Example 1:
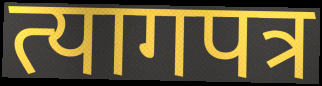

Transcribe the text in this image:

त्‍यागपत्र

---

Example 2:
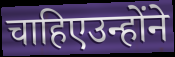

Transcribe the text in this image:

चाहिएउन्होंने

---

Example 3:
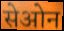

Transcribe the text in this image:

सेओन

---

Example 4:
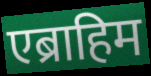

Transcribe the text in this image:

एब्राहिम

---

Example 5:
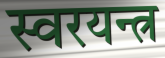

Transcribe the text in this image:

स्वरयन्त्र